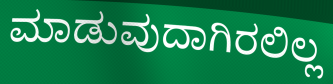
ಮಾಡುವುದಾಗಿರಲಿಲ್ಲ